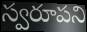
స్వరూపని